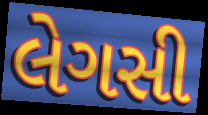
લેગસી